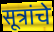
सूत्रांचे